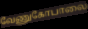
வேணுகோபாலை